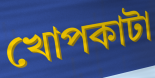
খোপকাটা